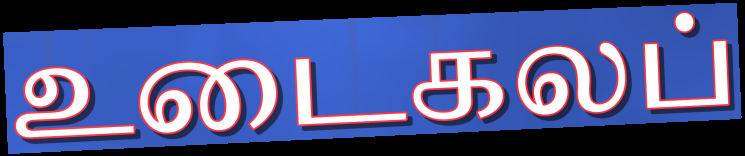
உடைகலப்